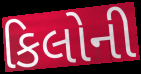
કિલોની